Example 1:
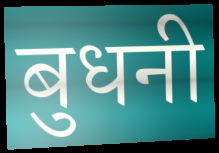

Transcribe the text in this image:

बुधनी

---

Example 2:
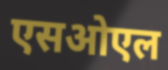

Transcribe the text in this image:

एसओएल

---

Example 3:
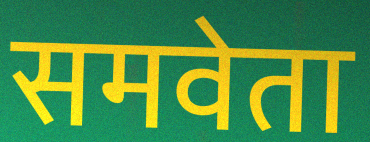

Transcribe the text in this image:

समवेता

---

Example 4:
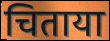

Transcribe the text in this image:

चिताया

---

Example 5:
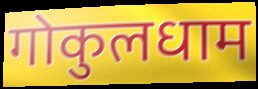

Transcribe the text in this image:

गोकुलधाम